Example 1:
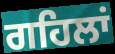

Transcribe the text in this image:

ਗਹਿਲਾਂ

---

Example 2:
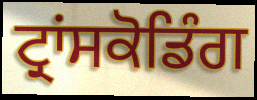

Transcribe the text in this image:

ਟ੍ਰਾਂਸਕੋਡਿੰਗ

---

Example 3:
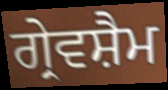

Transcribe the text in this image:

ਗ੍ਰੇਵਸ਼ੈਮ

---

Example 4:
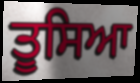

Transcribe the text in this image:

ਤੂਸਿਆ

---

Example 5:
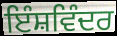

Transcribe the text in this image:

ਇੰਸ਼ਵਿੰਦਰ